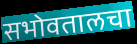
सभोवतालचा